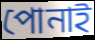
পোনাই